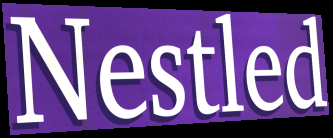
Nestled